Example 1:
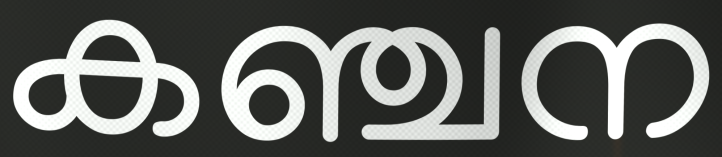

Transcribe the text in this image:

കഞ്ചന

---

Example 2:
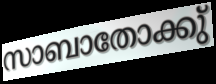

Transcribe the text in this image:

സാബാതോക്കു്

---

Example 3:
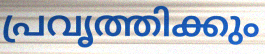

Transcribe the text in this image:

പ്രവൃത്തിക്കും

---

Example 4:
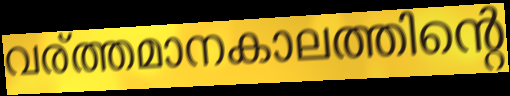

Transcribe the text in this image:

വര്ത്തമാനകാലത്തിന്റെ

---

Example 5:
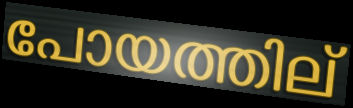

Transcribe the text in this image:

പോയത്തില്